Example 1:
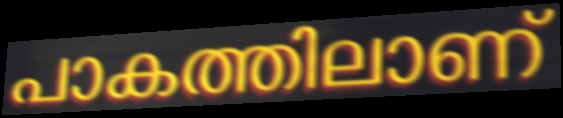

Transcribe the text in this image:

പാകത്തിലാണ്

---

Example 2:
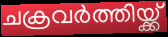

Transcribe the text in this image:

ചക്രവർത്തിയ്ക്ക്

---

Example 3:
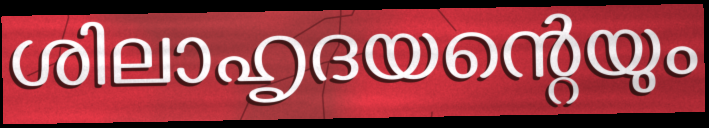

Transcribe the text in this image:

ശിലാഹൃദയന്റെയും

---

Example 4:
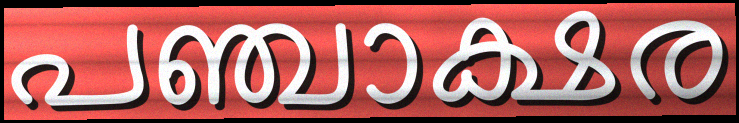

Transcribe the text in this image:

പഞ്ചാക്ഷര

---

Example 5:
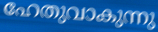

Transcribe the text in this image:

ഹേതുവാകുന്നു